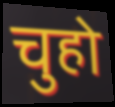
चुहो